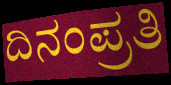
ದಿನಂಪ್ರತಿ